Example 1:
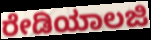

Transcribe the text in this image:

ರೇಡಿಯಾಲಜಿ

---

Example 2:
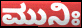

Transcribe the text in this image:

ಮುನಿಃ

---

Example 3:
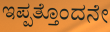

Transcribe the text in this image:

ಇಪ್ಪತ್ತೊಂದನೇ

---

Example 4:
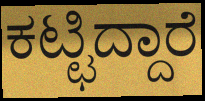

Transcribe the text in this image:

ಕಟ್ಟಿದ್ದಾರೆ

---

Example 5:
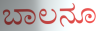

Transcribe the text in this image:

ಬಾಲನೂ